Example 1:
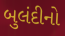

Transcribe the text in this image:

બુલંદીનો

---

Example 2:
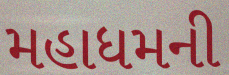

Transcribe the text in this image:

મહાધમની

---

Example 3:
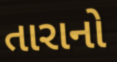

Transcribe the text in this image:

તારાનો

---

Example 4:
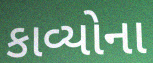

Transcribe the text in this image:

કાવ્યોના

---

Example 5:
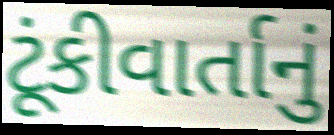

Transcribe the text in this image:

ટૂંકીવાર્તાનું